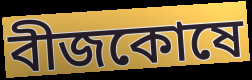
বীজকোষে